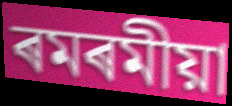
ৰমৰমীয়া